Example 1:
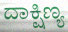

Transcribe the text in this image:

ದಾಕ್ಷಿಣ್ಯ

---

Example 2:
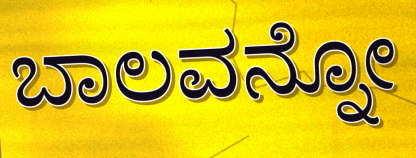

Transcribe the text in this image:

ಬಾಲವನ್ನೋ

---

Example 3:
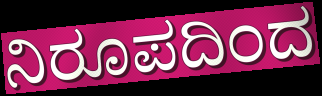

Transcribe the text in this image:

ನಿರೂಪದಿಂದ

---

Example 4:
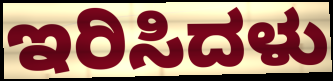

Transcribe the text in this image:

ಇರಿಸಿದಳು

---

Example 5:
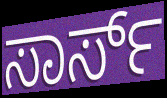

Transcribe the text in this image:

ಸಾರ್ಸ್